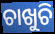
ଚାଖୁଚି